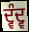
ਦ੍ਵੰਦ੍ਵ